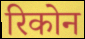
रिकोन